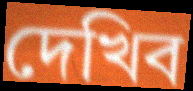
দেখিব